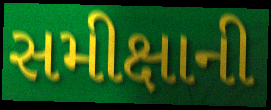
સમીક્ષાની